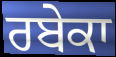
ਰਬੇਕਾ